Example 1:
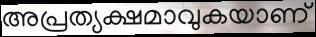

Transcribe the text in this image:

അപ്രത്യക്ഷമാവുകയാണ്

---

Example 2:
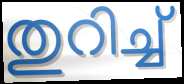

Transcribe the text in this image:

തുറിച്ച്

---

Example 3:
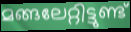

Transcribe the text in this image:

മങ്ങലേറ്റിട്ടുണ്ട്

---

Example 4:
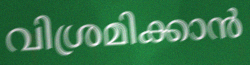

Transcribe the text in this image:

വിശ്രമിക്കാൻ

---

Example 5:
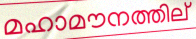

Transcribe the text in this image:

മഹാമൗനത്തില്